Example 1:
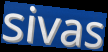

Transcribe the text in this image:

sivas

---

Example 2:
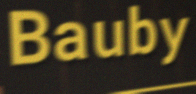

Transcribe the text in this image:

Bauby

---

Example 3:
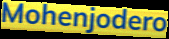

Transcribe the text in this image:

Mohenjodero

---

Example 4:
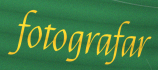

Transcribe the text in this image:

fotografar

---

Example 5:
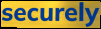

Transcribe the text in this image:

securely